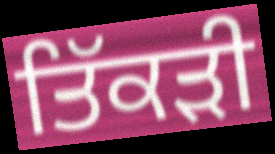
ਤਿੱਕੜੀ